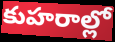
కుహరాల్లో